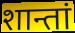
शान्तां